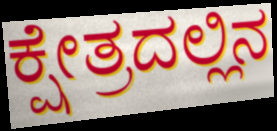
ಕ್ಷೇತ್ರದಲ್ಲಿನ